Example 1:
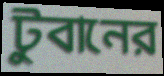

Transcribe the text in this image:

টুবানের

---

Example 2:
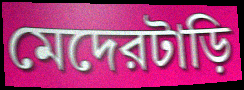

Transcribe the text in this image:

মেদেরটাড়ি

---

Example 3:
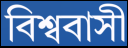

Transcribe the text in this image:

বিশ্ববাসী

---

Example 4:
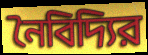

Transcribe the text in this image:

নৈবিদ্যির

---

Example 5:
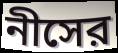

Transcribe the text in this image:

নীসের